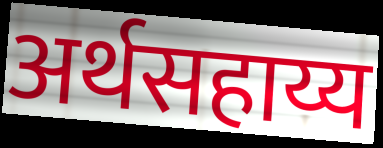
अर्थसहाय्य